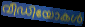
വീഡിയോകൾ